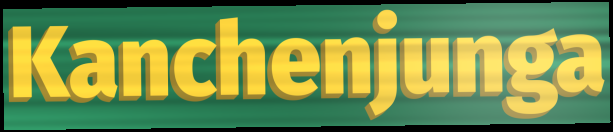
Kanchenjunga